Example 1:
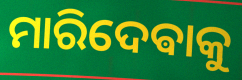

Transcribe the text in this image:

ମାରିଦେଵାକୁ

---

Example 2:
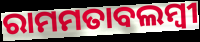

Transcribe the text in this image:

ରାମମତାବଲମ୍ବୀ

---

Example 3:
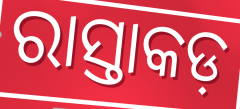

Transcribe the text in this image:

ରାସ୍ତାକଡ଼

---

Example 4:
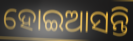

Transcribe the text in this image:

ହୋଇଆସନ୍ତି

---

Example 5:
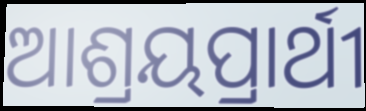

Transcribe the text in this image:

ଆଶ୍ରୟପ୍ରାର୍ଥୀ